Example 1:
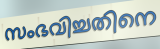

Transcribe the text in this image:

സംഭവിച്ചതിനെ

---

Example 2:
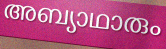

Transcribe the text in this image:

അബ്യാഥാരും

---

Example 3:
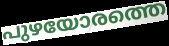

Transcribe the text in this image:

പുഴയോരത്തെ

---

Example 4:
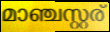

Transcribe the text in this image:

മാഞ്ചസ്റ്റര്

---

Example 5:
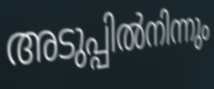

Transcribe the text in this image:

അടുപ്പിൽനിന്നും